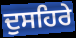
ਦੁਸਹਿਰੇ